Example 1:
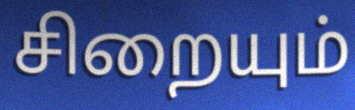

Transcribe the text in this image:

சிறையும்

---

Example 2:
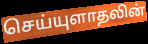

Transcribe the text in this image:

செய்யுளாதலின்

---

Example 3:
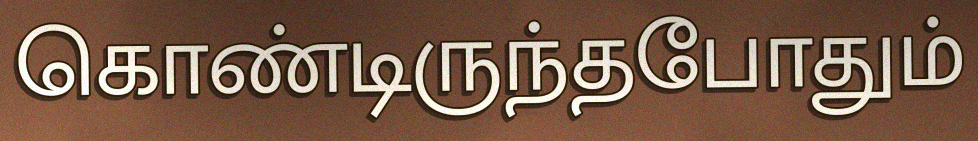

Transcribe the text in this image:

கொண்டிருந்தபோதும்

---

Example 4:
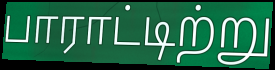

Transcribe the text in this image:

பாராட்டிற்று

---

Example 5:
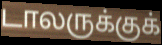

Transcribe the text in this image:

டாலருக்குக்